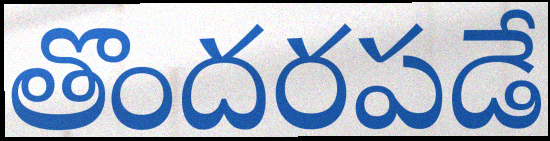
తొందరపడే